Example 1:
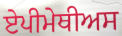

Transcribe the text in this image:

ਏਪੀਮੇਥੀਅਸ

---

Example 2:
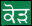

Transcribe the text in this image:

ਕੋੜ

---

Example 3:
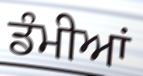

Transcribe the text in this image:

ਡੰਮੀਆਂ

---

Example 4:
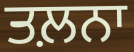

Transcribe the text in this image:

ਤਲ਼ਨਾ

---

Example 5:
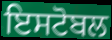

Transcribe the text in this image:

ਇਸਟੋਬਲ